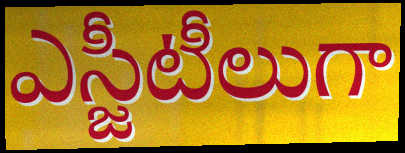
ఎస్జీటీలుగా